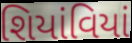
શિયાંવિયાં